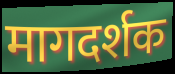
मागदर्शक